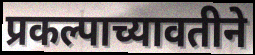
प्रकल्पाच्यावतीने